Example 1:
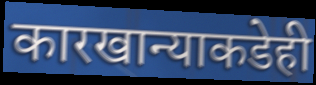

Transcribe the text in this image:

कारखान्याकडेही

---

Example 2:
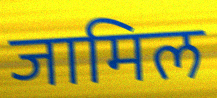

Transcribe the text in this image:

जामिल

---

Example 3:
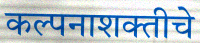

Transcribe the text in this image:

कल्पनाशक्तीचे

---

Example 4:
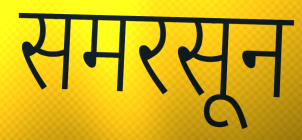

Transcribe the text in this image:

समरसून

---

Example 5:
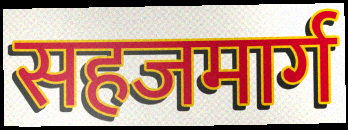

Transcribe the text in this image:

सहजमार्ग